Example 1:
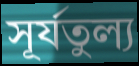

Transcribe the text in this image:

সূর্যতুল্য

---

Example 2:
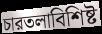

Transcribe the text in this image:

চারতলাবিশিষ্ট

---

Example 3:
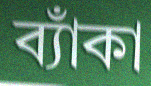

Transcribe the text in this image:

ব্যাঁকা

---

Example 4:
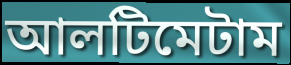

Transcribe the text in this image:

আলটিমেটাম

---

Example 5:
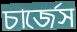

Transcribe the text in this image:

চার্জেস